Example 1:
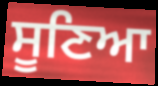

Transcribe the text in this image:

ਸੂਣਿਆ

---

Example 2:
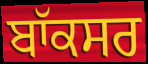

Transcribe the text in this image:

ਬਾੱਕਸਰ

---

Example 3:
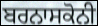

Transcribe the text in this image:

ਬਰਨਾਸਕੋਨੀ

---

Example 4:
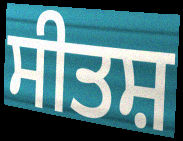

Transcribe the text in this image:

ਸੀਤਸ਼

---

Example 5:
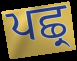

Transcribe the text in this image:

ਪਛ੍ਰ